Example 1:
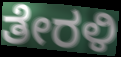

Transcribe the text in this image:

ತೇರಳಿ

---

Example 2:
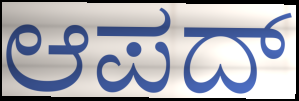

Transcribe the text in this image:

ಆಪದ್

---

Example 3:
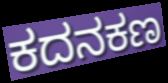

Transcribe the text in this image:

ಕದನಕಣ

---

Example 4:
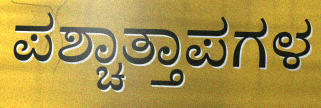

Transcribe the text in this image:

ಪಶ್ಚಾತ್ತಾಪಗಳ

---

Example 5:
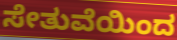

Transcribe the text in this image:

ಸೇತುವೆಯಿಂದ